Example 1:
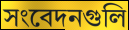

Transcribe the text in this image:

সংবেদনগুলি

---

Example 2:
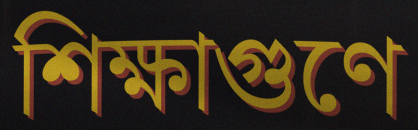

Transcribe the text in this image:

শিক্ষাগুণে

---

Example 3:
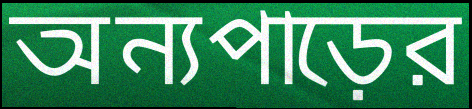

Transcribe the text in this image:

অন্যপাড়ের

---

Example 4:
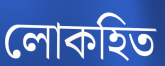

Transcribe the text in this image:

লোকহিত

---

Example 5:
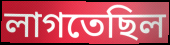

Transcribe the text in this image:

লাগতেছিল